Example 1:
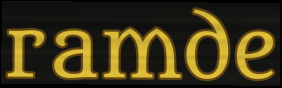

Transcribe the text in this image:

ramde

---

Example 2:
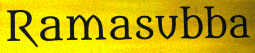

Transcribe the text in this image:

Ramasubba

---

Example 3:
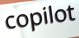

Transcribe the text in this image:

copilot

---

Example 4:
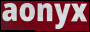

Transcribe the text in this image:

aonyx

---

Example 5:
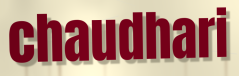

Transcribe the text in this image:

chaudhari